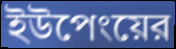
ইউপেংয়ের